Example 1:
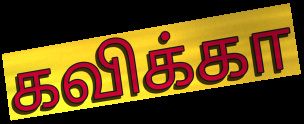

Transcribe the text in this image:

கவிக்கா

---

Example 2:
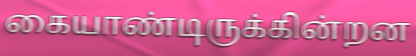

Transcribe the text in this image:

கையாண்டிருக்கின்றன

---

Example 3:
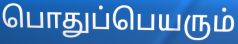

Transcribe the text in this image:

பொதுப்பெயரும்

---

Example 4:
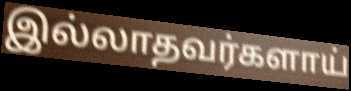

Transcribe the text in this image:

இல்லாதவர்களாய்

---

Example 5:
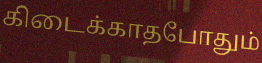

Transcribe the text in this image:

கிடைக்காதபோதும்